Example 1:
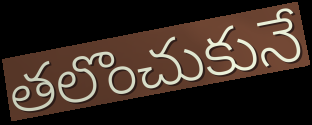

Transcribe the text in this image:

తలొంచుకునే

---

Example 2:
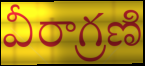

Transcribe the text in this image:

వీరాగ్రణి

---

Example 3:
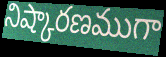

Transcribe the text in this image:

నిష్కారణముగా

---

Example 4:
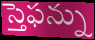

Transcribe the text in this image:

స్తెఫన్ను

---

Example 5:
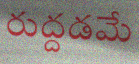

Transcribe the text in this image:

రుద్దడమే